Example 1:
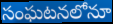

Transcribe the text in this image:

సంఘటనలోనూ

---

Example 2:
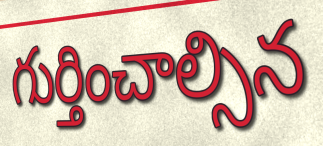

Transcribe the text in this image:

గుర్తించాల్సిన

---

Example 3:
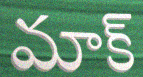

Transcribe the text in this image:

మాక్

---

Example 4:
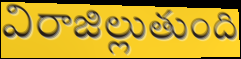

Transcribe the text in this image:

విరాజిల్లుతుంది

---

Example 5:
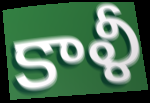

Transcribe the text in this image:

కాళీ